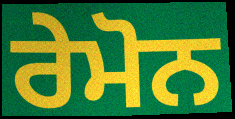
ਰੇਮੋਨ